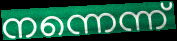
നന്നെന്ന്